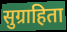
सुग्राहिता